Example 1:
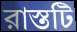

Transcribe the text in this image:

রাস্তটি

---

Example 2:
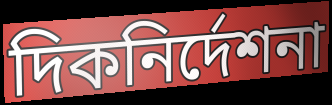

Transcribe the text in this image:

দিকনির্দেশনা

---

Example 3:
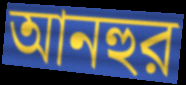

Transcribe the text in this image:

আনহুর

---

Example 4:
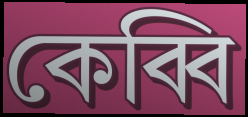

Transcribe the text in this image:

কেব্বি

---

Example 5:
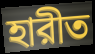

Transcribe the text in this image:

হারীত